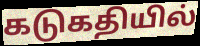
கடுகதியில்